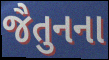
જૈતુનના